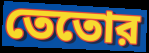
তেতোর